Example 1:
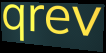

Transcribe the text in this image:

qrev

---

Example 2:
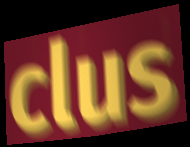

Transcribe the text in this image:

clus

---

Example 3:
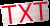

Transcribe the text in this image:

TXT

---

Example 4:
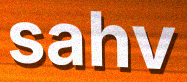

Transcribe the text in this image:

sahv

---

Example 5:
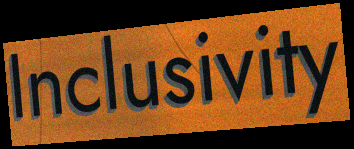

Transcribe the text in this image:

Inclusivity